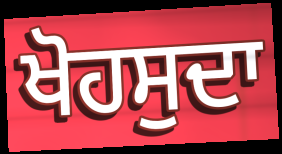
ਖੋਹਸੁਦਾ